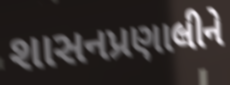
શાસનપ્રણાલીને